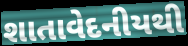
શાતાવેદનીયથી